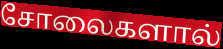
சோலைகளால்